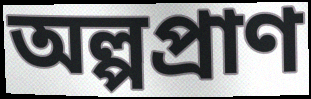
অল্পপ্ৰাণ